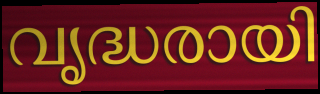
വൃദ്ധരായി